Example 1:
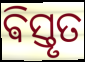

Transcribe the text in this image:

ଵିସ୍ତୃତ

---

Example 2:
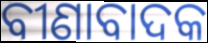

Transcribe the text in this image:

ବୀଣାବାଦକ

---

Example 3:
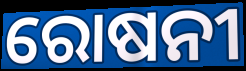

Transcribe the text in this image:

ରୋଷନୀ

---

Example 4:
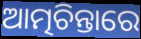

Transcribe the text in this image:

ଆତ୍ମଚିନ୍ତାରେ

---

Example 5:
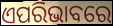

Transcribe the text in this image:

ଏପରିଭାବରେ